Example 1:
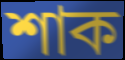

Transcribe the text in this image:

শাক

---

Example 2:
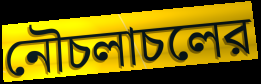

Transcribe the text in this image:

নৌচলাচলের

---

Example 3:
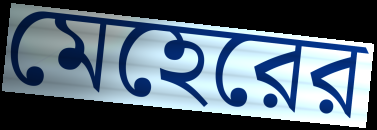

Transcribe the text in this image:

মেহেরের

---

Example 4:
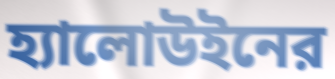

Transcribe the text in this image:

হ্যালোউইনের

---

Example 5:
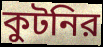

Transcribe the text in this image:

কুটনির